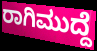
ರಾಗಿಮುದ್ದೆ